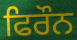
ਫਿਰੌਨ